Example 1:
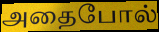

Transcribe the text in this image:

அதைபோல்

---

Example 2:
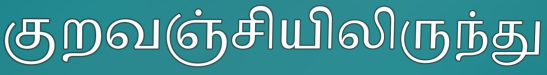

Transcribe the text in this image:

குறவஞ்சியிலிருந்து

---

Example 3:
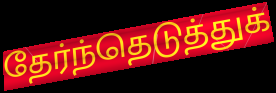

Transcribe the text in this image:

தேர்ந்தெடுத்துக்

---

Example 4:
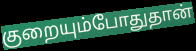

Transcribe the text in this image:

குறையும்போதுதான்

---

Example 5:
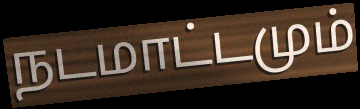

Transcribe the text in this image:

நடமாட்டமும்